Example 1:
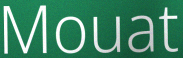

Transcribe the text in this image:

Mouat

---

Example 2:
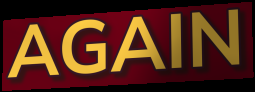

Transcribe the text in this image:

AGAIN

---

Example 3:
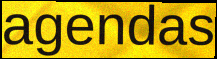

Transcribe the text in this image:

agendas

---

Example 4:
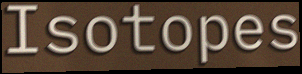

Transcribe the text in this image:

Isotopes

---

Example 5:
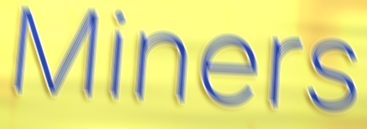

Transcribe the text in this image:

Miners